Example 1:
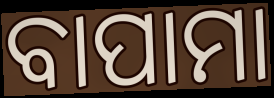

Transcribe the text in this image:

ବାପାମା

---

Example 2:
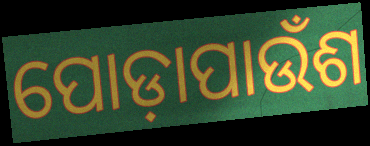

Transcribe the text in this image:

ପୋଡ଼ାପାଉଁଶ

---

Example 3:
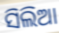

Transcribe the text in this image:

ସିଲିଆ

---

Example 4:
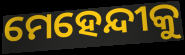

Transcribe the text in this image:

ମେହେନ୍ଦୀକୁ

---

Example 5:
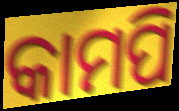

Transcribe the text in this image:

କାମପି